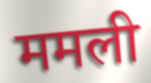
ममली